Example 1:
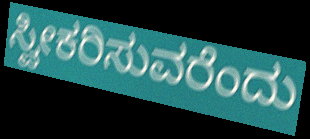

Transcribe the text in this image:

ಸ್ವೀಕರಿಸುವರೆಂದು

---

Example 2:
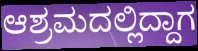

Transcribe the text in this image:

ಆಶ್ರಮದಲ್ಲಿದ್ದಾಗ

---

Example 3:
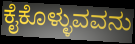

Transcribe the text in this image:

ಕೈಕೊಳ್ಳುವವನು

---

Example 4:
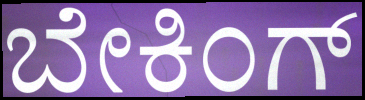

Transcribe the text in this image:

ಬೇಕಿಂಗ್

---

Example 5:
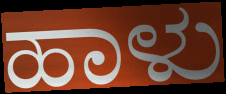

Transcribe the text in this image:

ಹಾಳು